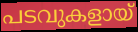
പടവുകളായ്